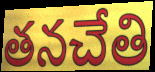
తనచేతి